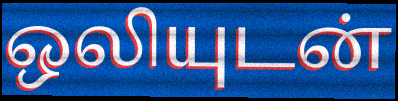
ஒலியுடன்